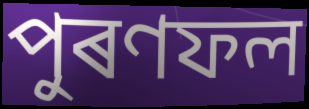
পুৰণফল